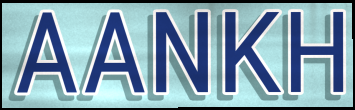
AANKH